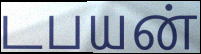
டபயன்